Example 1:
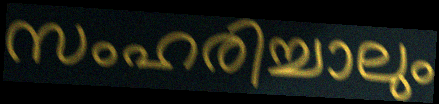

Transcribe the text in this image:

സംഹരിച്ചാലും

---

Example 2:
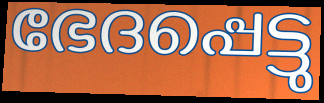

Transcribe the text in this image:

ഭേദപ്പെട്ടു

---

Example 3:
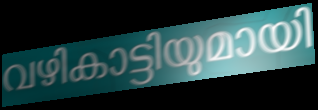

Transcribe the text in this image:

വഴികാട്ടിയുമായി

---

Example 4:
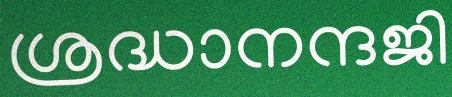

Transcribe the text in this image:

ശ്രദ്ധാനന്ദജി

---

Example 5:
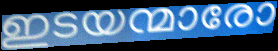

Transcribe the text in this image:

ഇടയന്മാരോ